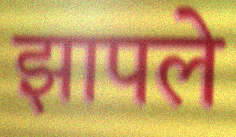
झापले